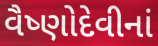
વૈષ્ણોદેવીનાં